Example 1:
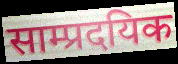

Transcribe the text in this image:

साम्प्रदयिक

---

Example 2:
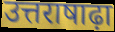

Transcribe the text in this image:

उत्तराषाढ़ा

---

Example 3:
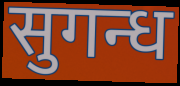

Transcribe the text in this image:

सुगन्ध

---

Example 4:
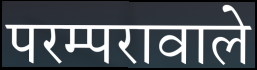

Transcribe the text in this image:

परम्परावाले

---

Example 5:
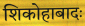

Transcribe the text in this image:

शिकोहाबादः